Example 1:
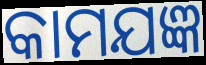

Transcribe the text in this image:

କାମଯଜ୍ଞ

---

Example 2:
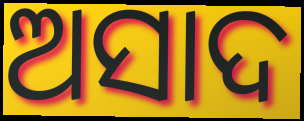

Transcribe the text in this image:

ଅସାଦ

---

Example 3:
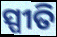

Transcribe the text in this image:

ସ୍ପୀତି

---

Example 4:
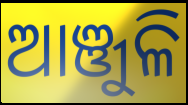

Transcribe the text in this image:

ଆଞ୍ଜୁଳି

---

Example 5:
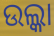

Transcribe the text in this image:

ଉଲ୍କା